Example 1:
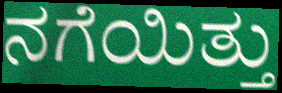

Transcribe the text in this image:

ನಗೆಯಿತ್ತು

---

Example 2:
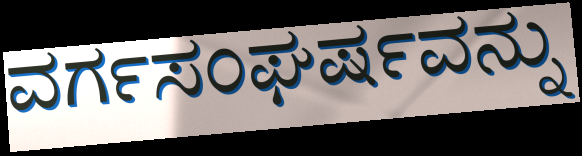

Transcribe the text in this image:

ವರ್ಗಸಂಘರ್ಷವನ್ನು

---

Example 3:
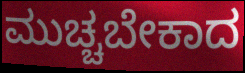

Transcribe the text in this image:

ಮುಚ್ಚಬೇಕಾದ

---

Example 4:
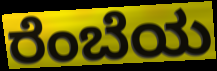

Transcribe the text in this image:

ರೆಂಬೆಯ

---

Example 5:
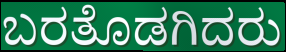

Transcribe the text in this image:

ಬರತೊಡಗಿದರು